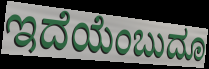
ಇದೆಯೆಂಬುದೂ